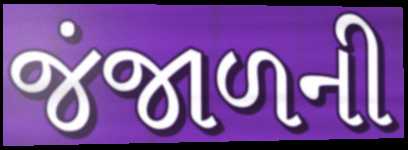
જંજાળની